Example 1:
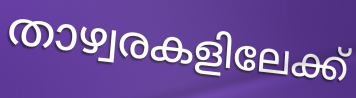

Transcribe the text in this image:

താഴ്വരകളിലേക്ക്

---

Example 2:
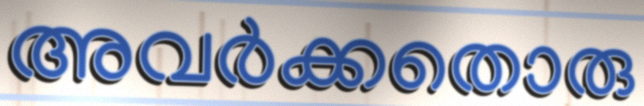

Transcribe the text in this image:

അവർക്കതൊരു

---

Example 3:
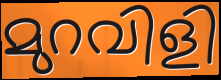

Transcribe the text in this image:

മുറവിളി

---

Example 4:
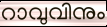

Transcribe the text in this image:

റാവുവിനും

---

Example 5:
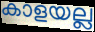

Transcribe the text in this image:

കാളയല്ല